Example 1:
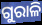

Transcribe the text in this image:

ଗୁରାଳି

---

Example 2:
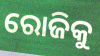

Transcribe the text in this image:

ରୋଜିକୁ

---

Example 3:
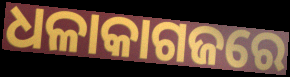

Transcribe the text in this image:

ଧଳାକାଗଜରେ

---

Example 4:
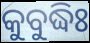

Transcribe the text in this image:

କୁବୁଦ୍ଧିଃ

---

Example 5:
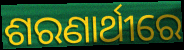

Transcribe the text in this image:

ଶରଣାର୍ଥୀରେ